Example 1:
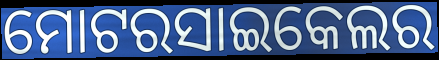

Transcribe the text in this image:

ମୋଟରସାଇକେଲର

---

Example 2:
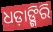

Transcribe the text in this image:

ଧଡ଼ାଙ୍ଗିରି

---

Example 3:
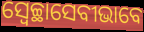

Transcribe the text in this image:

ସ୍ୱେଚ୍ଛାସେବୀଭାବେ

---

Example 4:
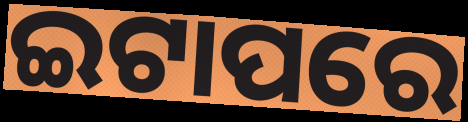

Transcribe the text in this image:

ଇଟାପରେ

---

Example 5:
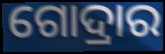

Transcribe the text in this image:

ଗୋଦ୍ରାର